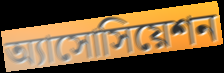
অ্যাসোসিয়েশন